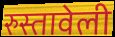
रुस्तावेली